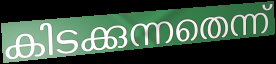
കിടക്കുന്നതെന്ന്